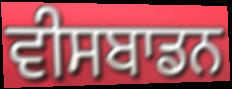
ਵੀਸਬਾਡਨ